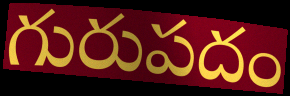
గురుపదం